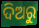
ଦିଅରୁ